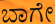
ಬಾಗೇ